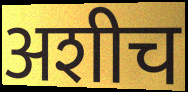
अशीच